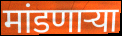
मांडणार्‍या